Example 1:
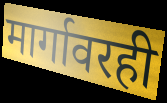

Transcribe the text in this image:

मार्गावरही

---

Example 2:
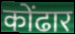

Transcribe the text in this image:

कोंढार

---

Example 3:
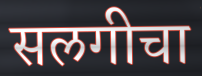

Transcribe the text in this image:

सलगीचा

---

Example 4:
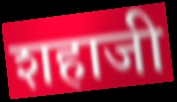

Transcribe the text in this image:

शहाजी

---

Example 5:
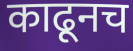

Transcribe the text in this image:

काढूनच